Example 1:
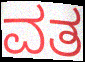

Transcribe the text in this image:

ವತ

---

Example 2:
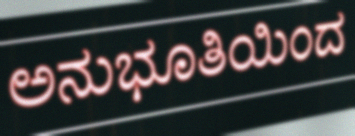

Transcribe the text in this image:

ಅನುಭೂತಿಯಿಂದ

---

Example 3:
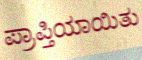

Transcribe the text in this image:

ಪ್ರಾಪ್ತಿಯಾಯಿತು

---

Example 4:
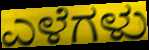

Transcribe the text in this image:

ಎಳೆಗಳು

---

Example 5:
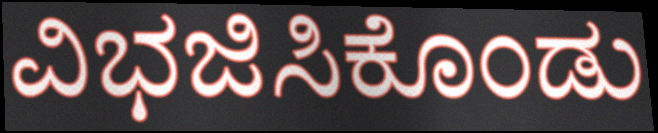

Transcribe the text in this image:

ವಿಭಜಿಸಿಕೊಂಡು